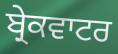
ਬ੍ਰੇਕਵਾਟਰ